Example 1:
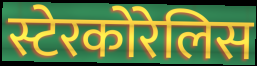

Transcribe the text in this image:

स्टेरकोरेलिस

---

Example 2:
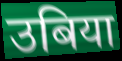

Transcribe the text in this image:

उबिया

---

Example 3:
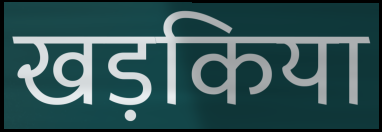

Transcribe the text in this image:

खड़किया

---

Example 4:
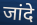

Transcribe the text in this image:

जांदे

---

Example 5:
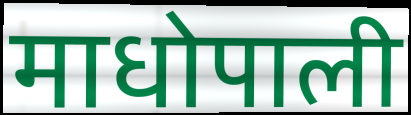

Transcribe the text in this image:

माधोपाली